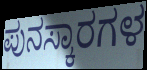
ಪುನಸ್ಕಾರಗಳ